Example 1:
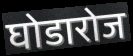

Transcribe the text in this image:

घोडारोज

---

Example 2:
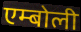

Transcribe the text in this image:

एम्बोली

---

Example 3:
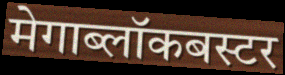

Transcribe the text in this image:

मेगाब्लॉकबस्टर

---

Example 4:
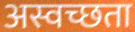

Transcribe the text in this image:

अस्वच्छता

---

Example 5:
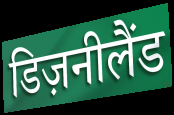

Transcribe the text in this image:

डिज़नीलैंड